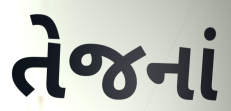
તેજનાં